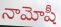
నామోషీ